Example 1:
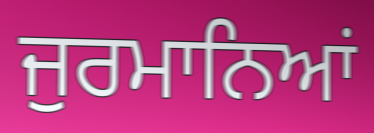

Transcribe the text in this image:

ਜੁਰਮਾਨਿਆਂ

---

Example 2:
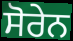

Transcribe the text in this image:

ਸੋਰੇਨ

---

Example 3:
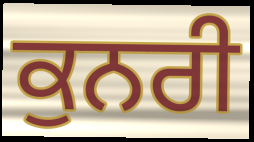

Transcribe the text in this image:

ਕੁਨਰੀ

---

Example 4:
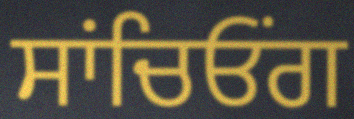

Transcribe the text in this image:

ਸਾਂਚਿਓਂਗ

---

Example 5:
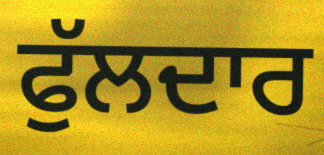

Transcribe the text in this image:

ਫੁੱਲਦਾਰ